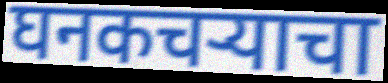
घनकचऱ्याचा